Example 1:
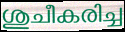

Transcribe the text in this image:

ശുചീകരിച്ച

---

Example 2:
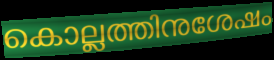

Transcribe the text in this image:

കൊല്ലത്തിനുശേഷം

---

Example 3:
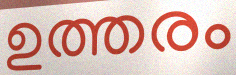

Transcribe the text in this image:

ഉത്തരം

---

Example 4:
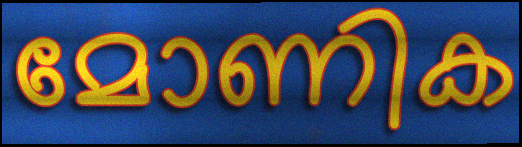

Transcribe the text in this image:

മോണിക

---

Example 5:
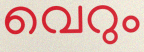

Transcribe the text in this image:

വെറും